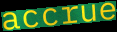
accrue